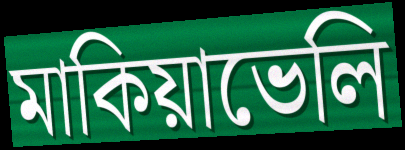
মাকিয়াভেলি